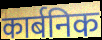
कार्बनिक